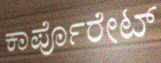
ಕಾರ್ಪೊರೇಟ್